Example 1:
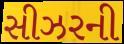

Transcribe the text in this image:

સીઝરની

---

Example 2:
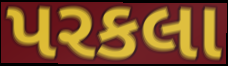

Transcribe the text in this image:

પરકલા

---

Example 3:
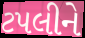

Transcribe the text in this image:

ટપલીને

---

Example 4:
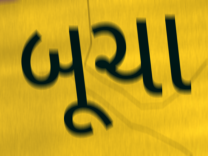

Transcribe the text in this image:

બૂચા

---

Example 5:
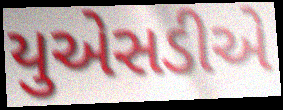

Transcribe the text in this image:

યુએસડીએ